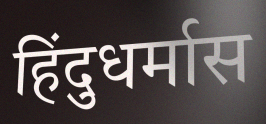
हिंदुधर्मास